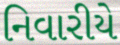
નિવારીયે